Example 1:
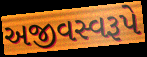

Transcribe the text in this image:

અજીવસ્વરૂપે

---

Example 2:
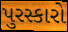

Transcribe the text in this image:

પુરસ્કારો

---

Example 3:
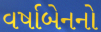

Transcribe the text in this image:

વર્ષાબેનનો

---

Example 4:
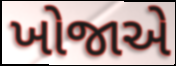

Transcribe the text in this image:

ખોજાએ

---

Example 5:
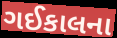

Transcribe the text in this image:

ગઈકાલના